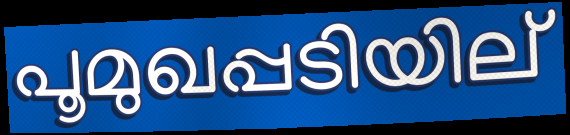
പൂമുഖപ്പടിയില്